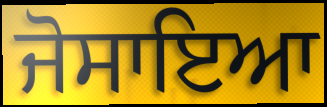
ਜੋਸਾਇਆ